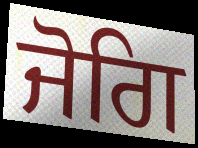
ਜੋਗਿ